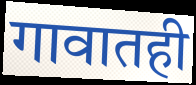
गावातही